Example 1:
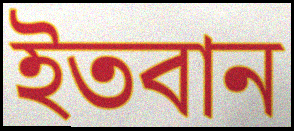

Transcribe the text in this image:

ইতবান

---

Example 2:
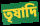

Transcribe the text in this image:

তৃষাদি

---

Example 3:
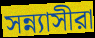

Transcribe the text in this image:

সন্ন্যাসীরা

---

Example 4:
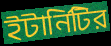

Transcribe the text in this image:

ইটার্নিটির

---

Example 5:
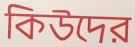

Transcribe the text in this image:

কিউদের